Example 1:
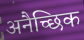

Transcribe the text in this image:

अनैच्छिक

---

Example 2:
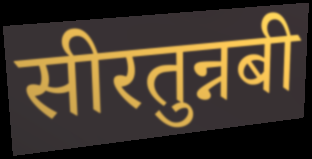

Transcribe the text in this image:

सीरतुन्नबी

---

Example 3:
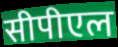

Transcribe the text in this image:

सीपीएल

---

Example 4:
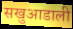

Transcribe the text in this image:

सखुआडाली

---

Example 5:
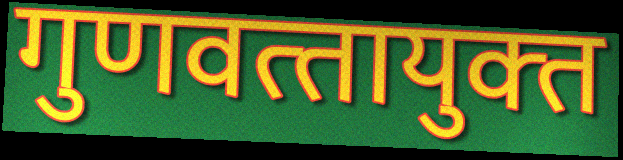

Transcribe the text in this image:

गुणवत्‍तायुक्‍त